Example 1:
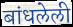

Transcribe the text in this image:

बांधलेली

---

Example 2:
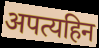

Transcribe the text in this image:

अपत्यहिन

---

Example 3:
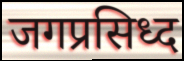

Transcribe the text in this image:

जगप्रसिध्द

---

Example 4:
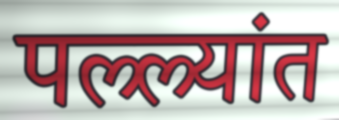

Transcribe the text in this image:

पल्ल्यांत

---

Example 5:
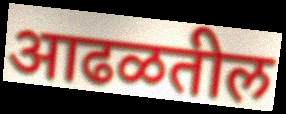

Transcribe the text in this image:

आढळतील